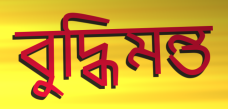
বুদ্ধিমন্ত